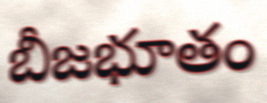
బీజభూతం